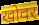
खोवर